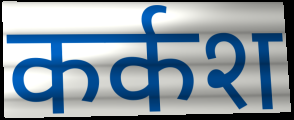
कर्कश